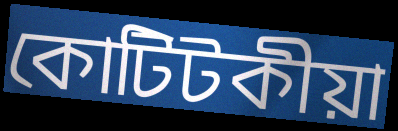
কোটিটকীয়া